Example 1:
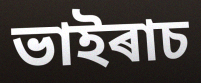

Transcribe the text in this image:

ভাইৰাচ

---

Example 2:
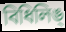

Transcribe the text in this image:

বিধিলিঙ্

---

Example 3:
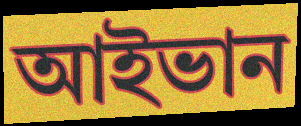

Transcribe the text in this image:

আইভান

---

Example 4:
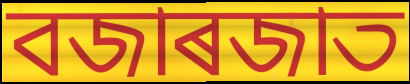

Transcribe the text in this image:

বজাৰজাত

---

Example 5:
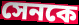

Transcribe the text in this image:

সেনকে